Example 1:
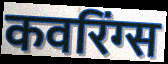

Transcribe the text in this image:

कवरिंग्स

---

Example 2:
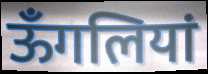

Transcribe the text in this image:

ऊँगलियां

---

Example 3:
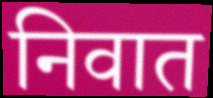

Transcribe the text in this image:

निवात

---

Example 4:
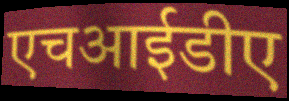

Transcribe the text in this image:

एचआईडीए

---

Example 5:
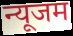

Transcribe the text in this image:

न्यूजम